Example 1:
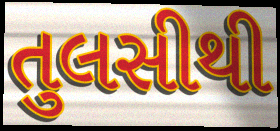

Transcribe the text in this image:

તુલસીથી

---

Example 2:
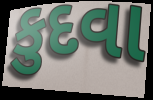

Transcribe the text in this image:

કુદવા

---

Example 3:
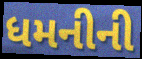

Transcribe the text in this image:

ધમનીની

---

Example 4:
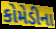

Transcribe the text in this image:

કોમેડીના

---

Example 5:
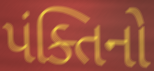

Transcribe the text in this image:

પંક્તિનો